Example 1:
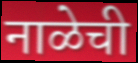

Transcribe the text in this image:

नाळेची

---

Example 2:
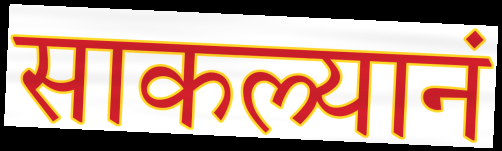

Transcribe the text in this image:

साकल्यानं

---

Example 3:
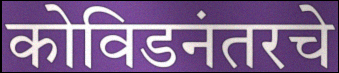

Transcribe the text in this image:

कोविडनंतरचे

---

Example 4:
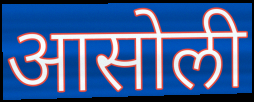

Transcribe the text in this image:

आसोली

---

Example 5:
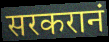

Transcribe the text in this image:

सरकरानं